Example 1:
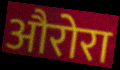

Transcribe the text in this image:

औरोरा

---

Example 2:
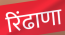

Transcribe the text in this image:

रिंढाणा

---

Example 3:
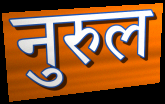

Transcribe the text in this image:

नुरुल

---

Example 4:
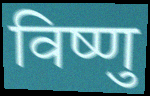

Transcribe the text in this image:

विष्‍णु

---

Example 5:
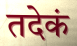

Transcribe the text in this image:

तदेकं